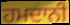
ਹਮਦਾਨੀ